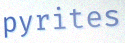
pyrites